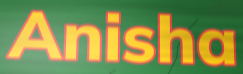
Anisha